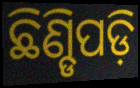
ଛିଣ୍ଡିପଡ଼ି